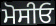
ਮੋਸੀਓ